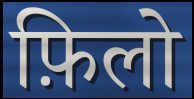
फ़िलो